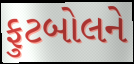
ફુટબોલને